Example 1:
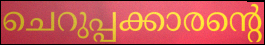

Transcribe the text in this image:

ചെറുപ്പക്കാരന്റെ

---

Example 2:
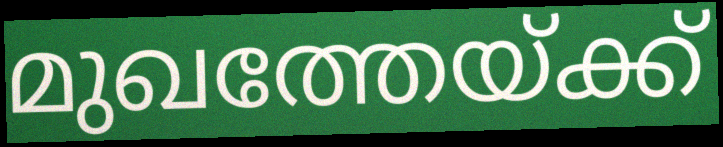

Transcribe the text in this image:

മുഖത്തേയ്ക്ക്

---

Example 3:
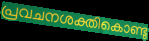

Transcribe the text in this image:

പ്രവചനശക്തികൊണ്ടു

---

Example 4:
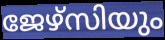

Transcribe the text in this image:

ജേഴ്സിയും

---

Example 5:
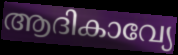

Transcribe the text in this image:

ആദികാവ്യേ